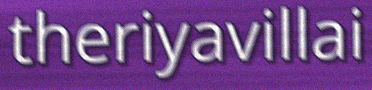
theriyavillai